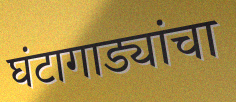
घंटागाड्यांचा